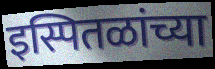
इस्पितळांच्या